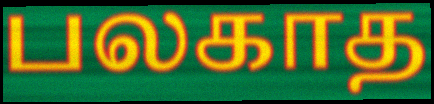
பலகாத